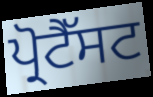
ਪ੍ਰੋਟੈੱਸਟ